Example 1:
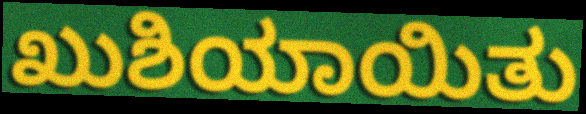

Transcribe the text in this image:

ಖುಶಿಯಾಯಿತು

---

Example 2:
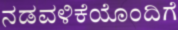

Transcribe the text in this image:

ನಡವಳಿಕೆಯೊಂದಿಗೆ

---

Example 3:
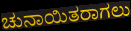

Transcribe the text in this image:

ಚುನಾಯಿತರಾಗಲು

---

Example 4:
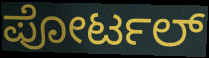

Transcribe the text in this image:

ಪೋರ್ಟಲ್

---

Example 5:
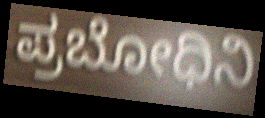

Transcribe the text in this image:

ಪ್ರಬೋಧಿನಿ